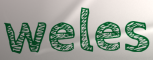
weles